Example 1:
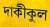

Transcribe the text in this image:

দাকীকুল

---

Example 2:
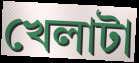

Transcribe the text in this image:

খেলাটা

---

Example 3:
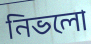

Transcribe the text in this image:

নিভলো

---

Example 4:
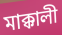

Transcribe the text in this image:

মাক্কালী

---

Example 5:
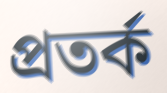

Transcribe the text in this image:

প্রতর্ক